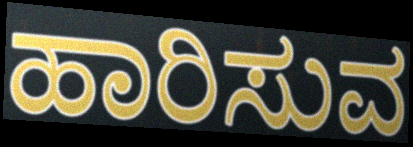
ಹಾರಿಸುವ